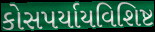
કોસપર્યાયવિશિષ્ટ